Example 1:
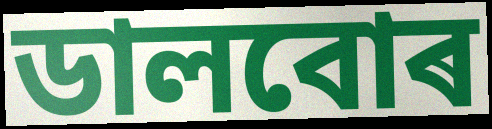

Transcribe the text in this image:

ডালবোৰ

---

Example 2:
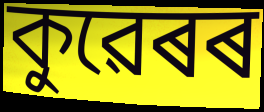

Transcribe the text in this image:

কুৱেৰৰ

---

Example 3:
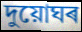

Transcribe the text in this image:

দুয়োঘৰ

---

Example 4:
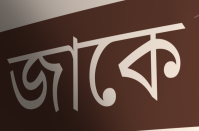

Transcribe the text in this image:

জাকে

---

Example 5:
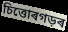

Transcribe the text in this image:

চিত্তোৰগড়ৰ